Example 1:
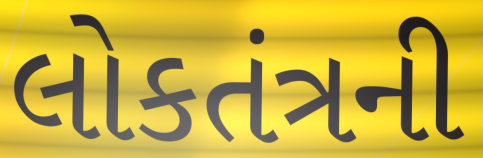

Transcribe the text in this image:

લોકતંત્રની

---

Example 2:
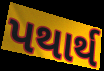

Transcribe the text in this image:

પથાર્થ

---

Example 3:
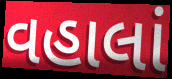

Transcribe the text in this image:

વહાલાં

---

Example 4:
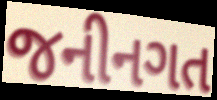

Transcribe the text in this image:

જનીનગત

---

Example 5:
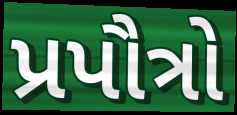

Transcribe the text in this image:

પ્રપૌત્રો